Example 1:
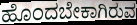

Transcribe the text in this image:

ಹೊಂದಬೇಕಾಗಿರುವ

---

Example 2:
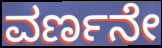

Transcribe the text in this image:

ವರ್ಣನೇ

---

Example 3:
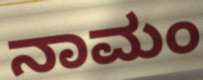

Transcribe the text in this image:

ನಾಮಂ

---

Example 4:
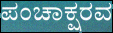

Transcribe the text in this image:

ಪಂಚಾಕ್ಷರವ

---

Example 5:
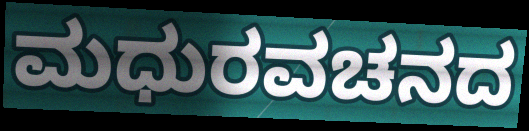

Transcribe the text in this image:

ಮಧುರವಚನದ